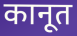
कानूत